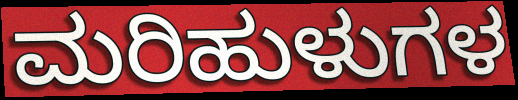
ಮರಿಹುಳುಗಳ